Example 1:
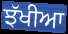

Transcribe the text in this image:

ਝੱਖੀਆ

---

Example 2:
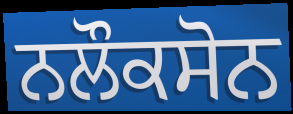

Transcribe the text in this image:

ਨਲੌਕਸੋਨ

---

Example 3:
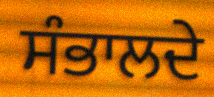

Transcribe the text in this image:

ਸੰਭਾਲਦੇ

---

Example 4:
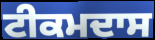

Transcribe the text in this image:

ਟੀਕਮਦਾਸ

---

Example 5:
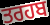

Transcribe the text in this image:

ਤਰਹਬ